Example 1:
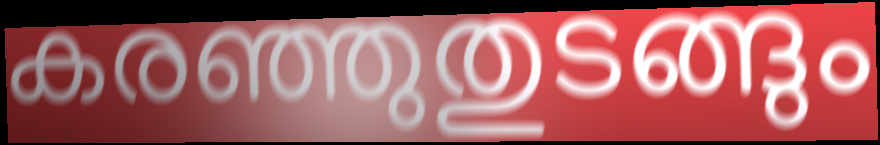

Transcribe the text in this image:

കരഞ്ഞുതുടങ്ങും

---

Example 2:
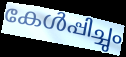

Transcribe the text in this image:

കേൾപ്പിച്ചും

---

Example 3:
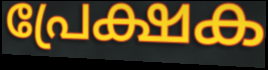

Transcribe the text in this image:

പ്രേക്ഷക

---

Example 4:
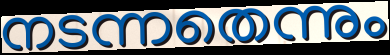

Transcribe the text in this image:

നടന്നതെന്നും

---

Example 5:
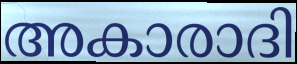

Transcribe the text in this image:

അകാരാദി